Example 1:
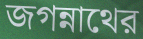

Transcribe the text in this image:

জগন্নাথের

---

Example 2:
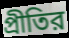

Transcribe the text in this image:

প্রীতির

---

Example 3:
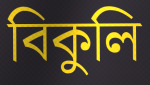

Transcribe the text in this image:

বিকুলি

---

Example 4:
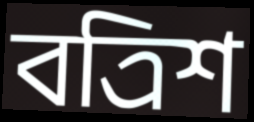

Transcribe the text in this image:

বত্রিশ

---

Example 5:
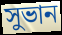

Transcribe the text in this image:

সুভান